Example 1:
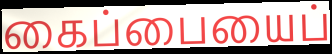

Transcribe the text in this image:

கைப்பையைப்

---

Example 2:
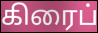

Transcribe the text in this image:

கிரைப்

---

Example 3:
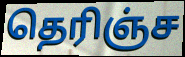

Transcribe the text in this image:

தெரிஞ்ச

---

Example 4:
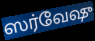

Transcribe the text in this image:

ஸர்வேஷு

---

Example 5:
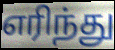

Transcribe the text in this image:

எரிந்து